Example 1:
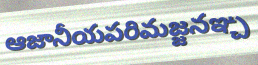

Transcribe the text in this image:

ఆజానీయపరిమజ్జనఞ్చ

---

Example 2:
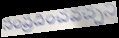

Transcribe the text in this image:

సంప్రదించవచ్చని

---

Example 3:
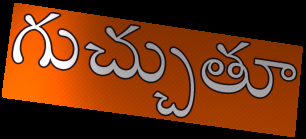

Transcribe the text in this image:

గుచ్చుతూ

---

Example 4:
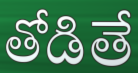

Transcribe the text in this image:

తోడితే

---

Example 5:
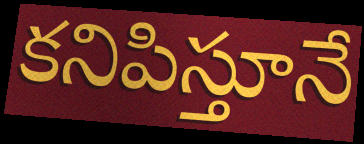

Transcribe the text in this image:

కనిపిస్తూనే